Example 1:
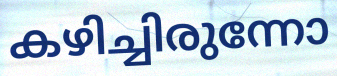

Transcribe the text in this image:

കഴിച്ചിരുന്നോ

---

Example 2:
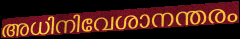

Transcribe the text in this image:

അധിനിവേശാനന്തരം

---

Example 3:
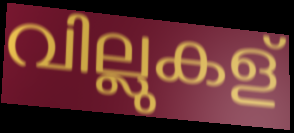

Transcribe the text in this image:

വില്ലുകള്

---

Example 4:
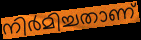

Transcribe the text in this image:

നിർമിച്ചതാണ്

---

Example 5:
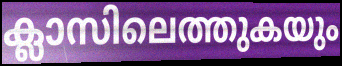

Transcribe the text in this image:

ക്ലാസിലെത്തുകയും